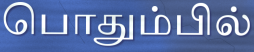
பொதும்பில்